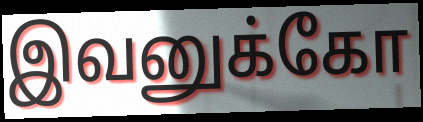
இவனுக்கோ